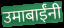
उमाबाईंनी